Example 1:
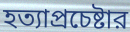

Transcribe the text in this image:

হত্যাপ্রচেষ্টার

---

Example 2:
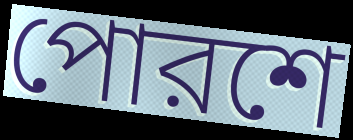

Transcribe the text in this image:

পোরশে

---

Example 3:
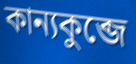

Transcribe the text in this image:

কান্যকুব্জে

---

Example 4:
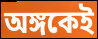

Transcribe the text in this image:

অঙ্গকেই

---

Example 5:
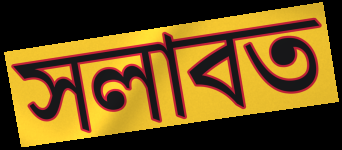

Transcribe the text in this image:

সলাবত